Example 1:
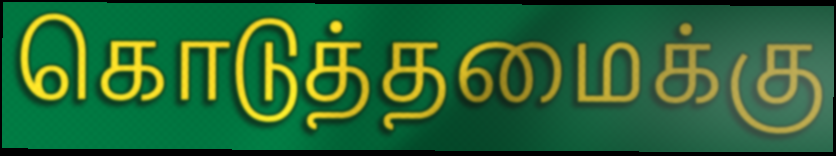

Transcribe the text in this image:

கொடுத்தமைக்கு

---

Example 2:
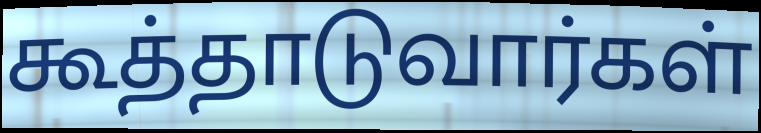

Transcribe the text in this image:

கூத்தாடுவார்கள்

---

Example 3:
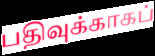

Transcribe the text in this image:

பதிவுக்காகப்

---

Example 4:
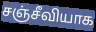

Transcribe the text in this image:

சஞ்சீவியாக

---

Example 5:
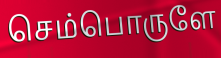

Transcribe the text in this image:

செம்பொருளே